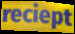
reciept